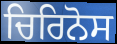
ਚਿਰਿਨੋਸ